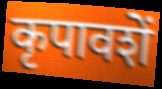
कृपावशें